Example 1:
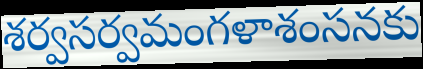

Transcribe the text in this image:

శర్వసర్వమంగళాశంసనకు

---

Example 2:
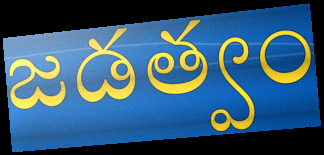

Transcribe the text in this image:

జడత్వం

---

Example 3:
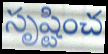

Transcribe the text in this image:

సృష్టించ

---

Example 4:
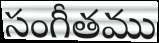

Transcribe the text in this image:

సంగీతము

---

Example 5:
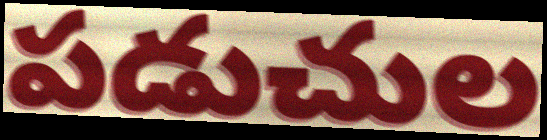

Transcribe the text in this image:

పడుచుల